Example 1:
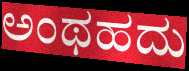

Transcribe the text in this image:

ಅಂಥಹದು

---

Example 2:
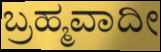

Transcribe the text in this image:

ಬ್ರಹ್ಮವಾದೀ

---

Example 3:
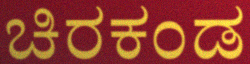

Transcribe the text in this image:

ಚಿರಕಂಡ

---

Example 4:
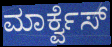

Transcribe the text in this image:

ಮಾರ್ಕ್ವೆಸ್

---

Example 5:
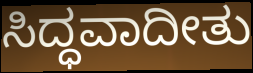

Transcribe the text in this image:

ಸಿದ್ಧವಾದೀತು